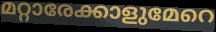
മറ്റാരേക്കാളുമേറെ